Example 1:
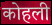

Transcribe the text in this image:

कोहली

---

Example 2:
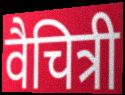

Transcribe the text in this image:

वैचित्री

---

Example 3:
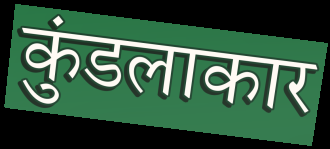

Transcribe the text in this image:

कुंडलाकार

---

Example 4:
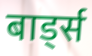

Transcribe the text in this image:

बार्ड्स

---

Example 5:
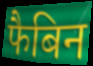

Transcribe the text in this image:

फैबिन